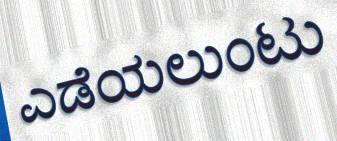
ಎಡೆಯಲುಂಟು